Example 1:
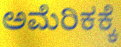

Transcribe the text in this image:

ಅಮೆರಿಕಕ್ಕೆ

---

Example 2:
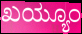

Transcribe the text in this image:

ಖಯ್ಯೂಂ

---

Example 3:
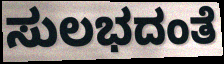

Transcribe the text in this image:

ಸುಲಭದಂತೆ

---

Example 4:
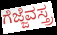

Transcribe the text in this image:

ಗೆಜ್ಜೆವಸ್ತ್ರ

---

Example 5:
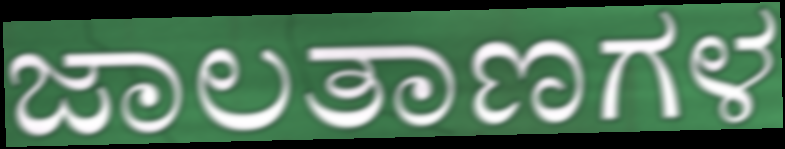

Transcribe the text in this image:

ಜಾಲತಾಣಗಳ